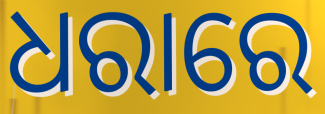
ଧରାରେ